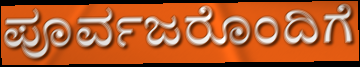
ಪೂರ್ವಜರೊಂದಿಗೆ